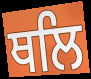
ਥਲਿ